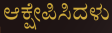
ಆಕ್ಷೇಪಿಸಿದಳು